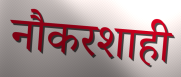
नौकरशाही